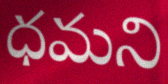
ధమని